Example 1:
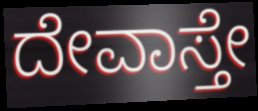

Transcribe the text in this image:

ದೇವಾಸ್ತೇ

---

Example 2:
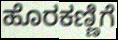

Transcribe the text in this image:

ಹೊರಕಣ್ಣಿಗೆ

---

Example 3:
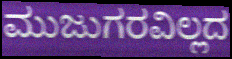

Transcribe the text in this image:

ಮುಜುಗರವಿಲ್ಲದ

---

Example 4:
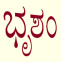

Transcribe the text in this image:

ಭೃಶಂ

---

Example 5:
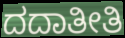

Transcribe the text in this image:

ದದಾತೀತಿ